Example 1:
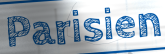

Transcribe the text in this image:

Parisien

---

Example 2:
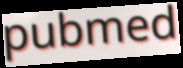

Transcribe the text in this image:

pubmed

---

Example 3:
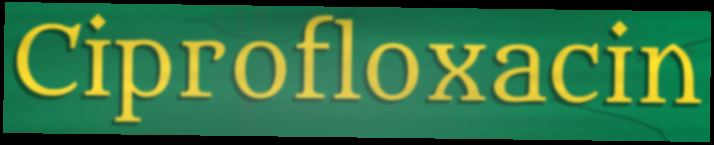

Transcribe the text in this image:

Ciprofloxacin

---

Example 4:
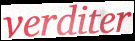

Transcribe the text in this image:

verditer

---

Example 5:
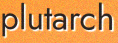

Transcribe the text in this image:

plutarch